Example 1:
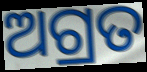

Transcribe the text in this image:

ଅଗ୍ରତ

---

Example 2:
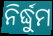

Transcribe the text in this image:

ନିର୍ଦ୍ଧୁମ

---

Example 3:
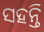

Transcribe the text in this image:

ସହନ୍ତି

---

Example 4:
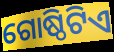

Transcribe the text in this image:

ଗୋଷ୍ଠିଟିଏ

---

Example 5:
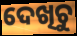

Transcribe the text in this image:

ଦେଖିଚୁ